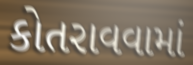
કોતરાવવામાં